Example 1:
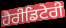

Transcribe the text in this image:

ਹੈਰੀਡਿਟੇਰੀ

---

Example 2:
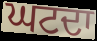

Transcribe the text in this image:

ਘਟਦਾ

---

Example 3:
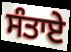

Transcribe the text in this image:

ਸੰਤਾਏ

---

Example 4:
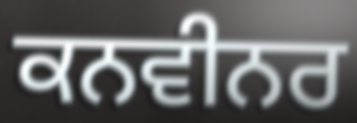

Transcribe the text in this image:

ਕਨਵੀਨਰ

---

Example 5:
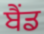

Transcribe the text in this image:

ਬੈੰਡ